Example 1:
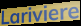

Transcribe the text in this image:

Lariviere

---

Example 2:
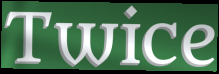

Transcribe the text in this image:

Twice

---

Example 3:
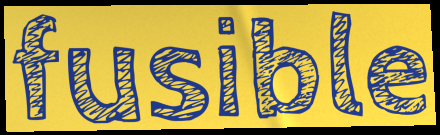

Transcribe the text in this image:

fusible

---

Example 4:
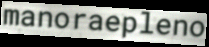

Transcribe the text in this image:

manoraepleno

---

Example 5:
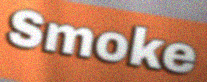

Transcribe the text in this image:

Smoke